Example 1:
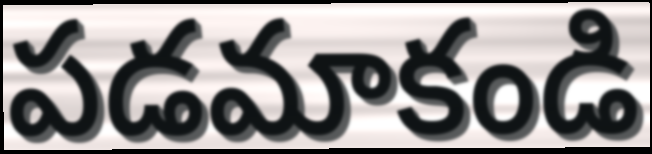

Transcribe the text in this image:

పడమాకండి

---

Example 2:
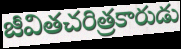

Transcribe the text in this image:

జీవితచరిత్రకారుడు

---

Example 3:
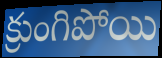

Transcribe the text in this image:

క్రుంగిపోయి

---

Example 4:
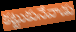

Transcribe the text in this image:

కట్టుకునేవాడు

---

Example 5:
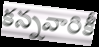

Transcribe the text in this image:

కన్నవారికీ